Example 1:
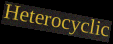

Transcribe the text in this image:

Heterocyclic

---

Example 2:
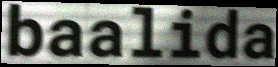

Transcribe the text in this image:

baalida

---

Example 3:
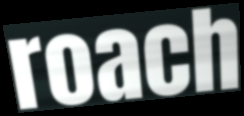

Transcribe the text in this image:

roach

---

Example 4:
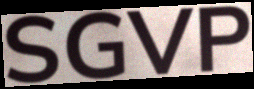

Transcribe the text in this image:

SGVP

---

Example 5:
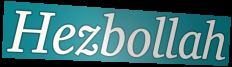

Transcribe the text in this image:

Hezbollah